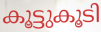
കൂട്ടുകൂടി